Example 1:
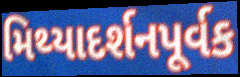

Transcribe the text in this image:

મિથ્યાદર્શનપૂર્વક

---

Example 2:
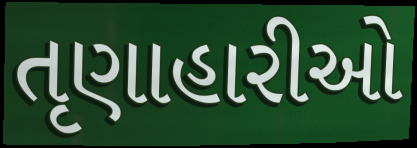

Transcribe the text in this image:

તૃણાહારીઓ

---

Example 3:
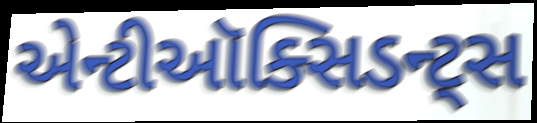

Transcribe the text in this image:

એન્ટીઑક્સિડન્ટ્સ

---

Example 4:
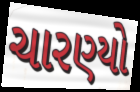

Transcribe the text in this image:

ચારણ્યો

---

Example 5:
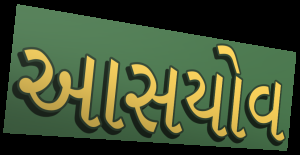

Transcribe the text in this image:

આસયોવ